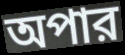
অপার